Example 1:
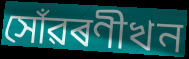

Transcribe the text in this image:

সোঁৱৰণীখন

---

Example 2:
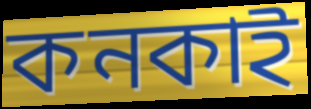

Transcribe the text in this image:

কনকাই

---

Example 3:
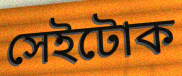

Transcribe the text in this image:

সেইটোক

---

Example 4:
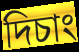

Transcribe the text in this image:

দিচাং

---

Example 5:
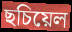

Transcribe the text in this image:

ছচিয়েল